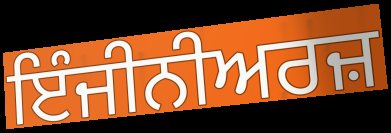
ਇੰਜੀਨੀਅਰਜ਼